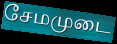
சேமமுடை